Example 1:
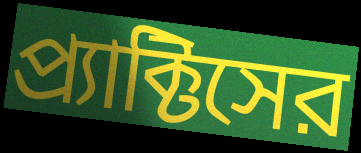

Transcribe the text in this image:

প্র্যাক্টিসের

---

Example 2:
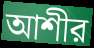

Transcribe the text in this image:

আশীর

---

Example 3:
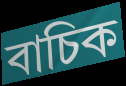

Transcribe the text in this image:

বাচিক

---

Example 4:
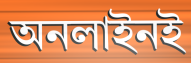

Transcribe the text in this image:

অনলাইনই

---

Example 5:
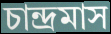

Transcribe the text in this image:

চান্দ্রমাস